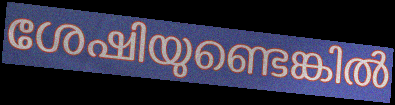
ശേഷിയുണ്ടെങ്കിൽ